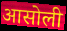
आसोली